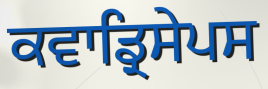
ਕਵਾਡ੍ਰਿਸੇਪਸ